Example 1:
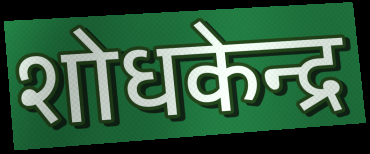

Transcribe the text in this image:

शोधकेन्द्र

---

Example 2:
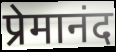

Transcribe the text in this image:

प्रेमानंद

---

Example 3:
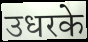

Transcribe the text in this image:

उधरके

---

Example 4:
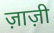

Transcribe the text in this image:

ज़ाज़ी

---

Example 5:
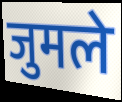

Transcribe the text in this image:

जुमले